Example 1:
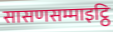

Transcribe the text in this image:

सासणसम्माइट्ठि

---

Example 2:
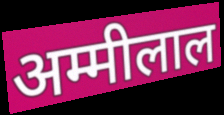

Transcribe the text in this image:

अम्मीलाल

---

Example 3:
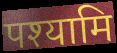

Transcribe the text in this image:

पश्यामि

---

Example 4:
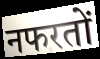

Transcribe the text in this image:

नफरतों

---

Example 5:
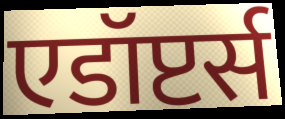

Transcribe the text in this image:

एडॉप्टर्स